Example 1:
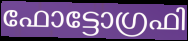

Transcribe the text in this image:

ഫോട്ടോഗ്രഫി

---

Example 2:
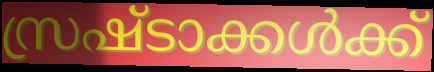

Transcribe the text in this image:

സ്രഷ്ടാക്കൾക്ക്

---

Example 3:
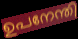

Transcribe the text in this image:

ഉപനേന്തി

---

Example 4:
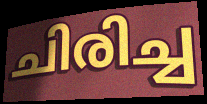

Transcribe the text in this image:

ചിരിച്ച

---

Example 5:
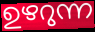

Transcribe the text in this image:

ഉഴറുന്ന